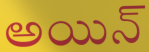
అయిన్